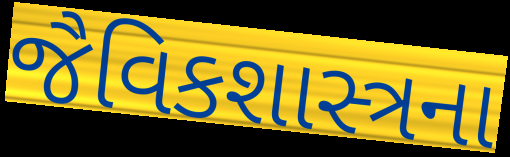
જૈવિકશાસ્ત્રના